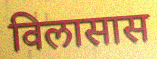
विलासास